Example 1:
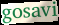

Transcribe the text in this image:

gosavi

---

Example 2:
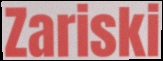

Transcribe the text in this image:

Zariski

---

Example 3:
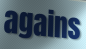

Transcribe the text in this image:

agains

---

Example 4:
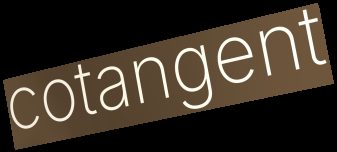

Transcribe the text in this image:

cotangent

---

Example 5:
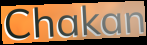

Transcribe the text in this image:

Chakan